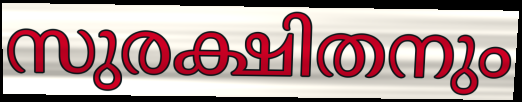
സുരക്ഷിതനും